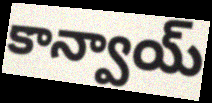
కాన్వాయ్